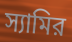
স্যামির